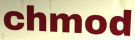
chmod